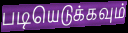
படியெடுக்கவும்